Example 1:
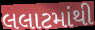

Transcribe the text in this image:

લલાટમાંથી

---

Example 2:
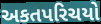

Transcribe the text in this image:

અકતપરિચયો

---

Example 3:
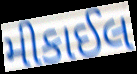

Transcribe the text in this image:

મીકાઈલ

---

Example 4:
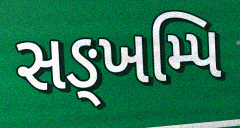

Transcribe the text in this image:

સઙ્ખમ્પિ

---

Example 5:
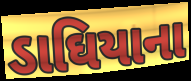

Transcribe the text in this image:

ડાઘિયાના